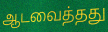
ஆடவைத்தது